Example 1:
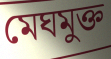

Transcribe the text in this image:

মেঘমুক্ত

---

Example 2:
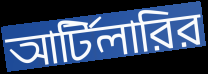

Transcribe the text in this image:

আর্টিলারির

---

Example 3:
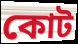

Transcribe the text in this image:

কোট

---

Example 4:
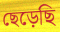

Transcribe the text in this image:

ছেড়েছি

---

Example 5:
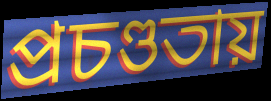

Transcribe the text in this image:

প্রচণ্ডতায়